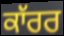
ਕਾੱਰਰ